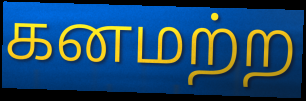
கனமற்ற